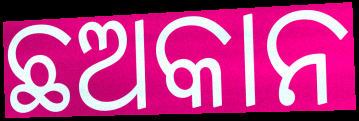
ଛଅକାନ